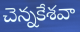
చెన్నకేశవా